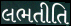
લભતીતિ